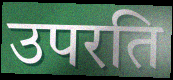
उपरति